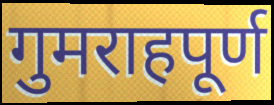
गुमराहपूर्ण